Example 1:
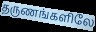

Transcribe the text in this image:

தருணங்களிலே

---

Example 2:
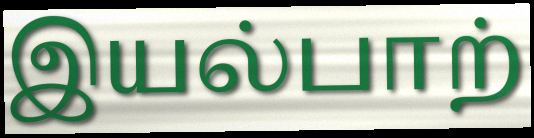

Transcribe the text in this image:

இயல்பாற்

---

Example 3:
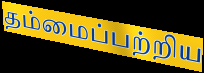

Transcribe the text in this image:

தம்மைப்பற்றிய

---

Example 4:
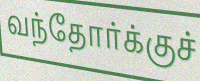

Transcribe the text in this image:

வந்தோர்க்குச்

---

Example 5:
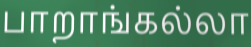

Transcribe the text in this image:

பாறாங்கல்லா